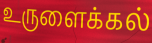
உருளைக்கல்